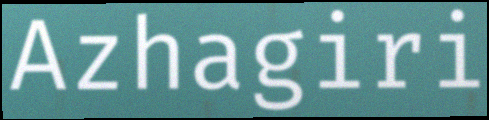
Azhagiri